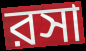
রসা